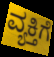
ವ್ಯಕ್ತಿಗೆ